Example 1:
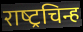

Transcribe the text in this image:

राष्ट्रचिन्ह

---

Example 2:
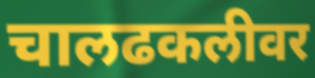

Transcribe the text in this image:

चालढकलीवर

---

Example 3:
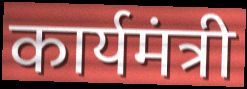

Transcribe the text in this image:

कार्यमंत्री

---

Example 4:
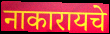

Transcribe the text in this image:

नाकारायचे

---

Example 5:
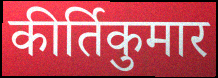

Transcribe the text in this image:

कीर्तिकुमार